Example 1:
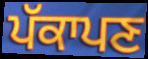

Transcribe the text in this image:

ਪੱਕਾਪਣ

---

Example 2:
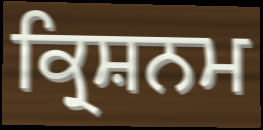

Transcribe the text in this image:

ਕ੍ਰਿਸ਼ਨਮ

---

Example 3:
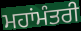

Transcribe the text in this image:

ਮਹਾਂਮੰਤਰੀ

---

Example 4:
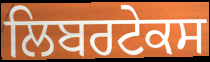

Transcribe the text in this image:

ਲਿਬਰਟੇਕਸ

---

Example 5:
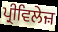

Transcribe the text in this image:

ਪ੍ਰੀਵਿਲੇਜ਼